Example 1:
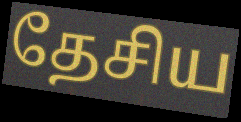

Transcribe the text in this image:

தேசிய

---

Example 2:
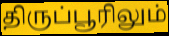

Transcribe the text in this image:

திருப்பூரிலும்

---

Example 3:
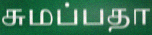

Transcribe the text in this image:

சுமப்பதா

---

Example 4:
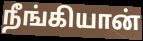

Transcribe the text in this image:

நீங்கியான்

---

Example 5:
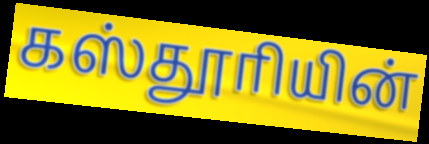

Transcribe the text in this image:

கஸ்தூரியின்